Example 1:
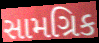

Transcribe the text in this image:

સામગ્રિક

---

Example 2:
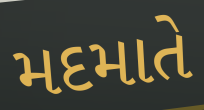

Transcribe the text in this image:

મદમાતે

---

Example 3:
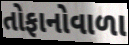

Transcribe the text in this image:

તોફાનોવાળા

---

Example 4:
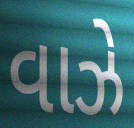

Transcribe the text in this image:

વાઝે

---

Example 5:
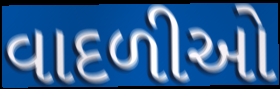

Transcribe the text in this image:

વાદળીઓ